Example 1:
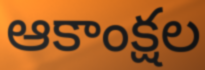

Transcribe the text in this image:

ఆకాంక్షల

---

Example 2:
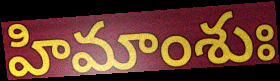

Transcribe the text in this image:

హిమాంశుః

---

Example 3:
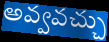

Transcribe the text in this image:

అవ్వవచ్చు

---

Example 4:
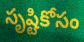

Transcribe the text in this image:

సృష్టికోసం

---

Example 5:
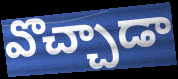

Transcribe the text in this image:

వొచ్చాడా